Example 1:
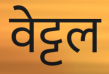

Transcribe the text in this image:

वेट्टल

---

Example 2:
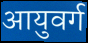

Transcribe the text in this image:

आयुवर्ग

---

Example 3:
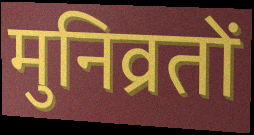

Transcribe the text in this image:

मुनिव्रतों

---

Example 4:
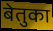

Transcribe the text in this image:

बेतुका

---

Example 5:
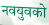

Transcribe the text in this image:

नवयुवको